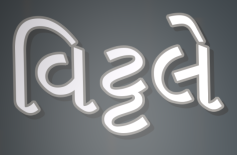
વિટ્ટલે